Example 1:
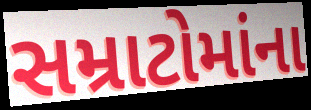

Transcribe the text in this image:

સમ્રાટોમાંના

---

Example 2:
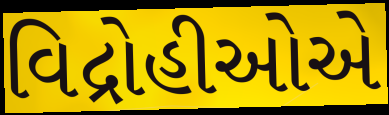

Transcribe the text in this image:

વિદ્રોહીઓએ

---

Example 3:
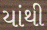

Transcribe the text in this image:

યાંથી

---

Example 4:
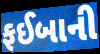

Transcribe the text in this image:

ફઈબાની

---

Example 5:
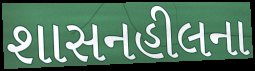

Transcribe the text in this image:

શાસનહીલના